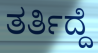
ತರ್ತಿದ್ದೆ